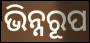
ଭିନ୍ନରୂପ